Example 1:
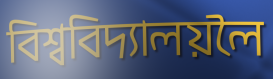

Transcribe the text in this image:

বিশ্ববিদ্যালয়লৈ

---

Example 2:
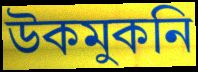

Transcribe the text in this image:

উকমুকনি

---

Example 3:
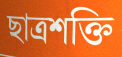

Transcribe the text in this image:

ছাত্ৰশক্তি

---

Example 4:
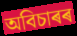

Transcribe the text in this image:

অবিচাৰৰ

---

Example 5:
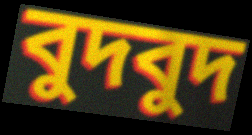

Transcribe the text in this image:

বুদবুদ